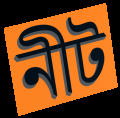
নীট